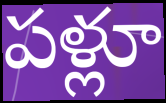
పళ్లూ